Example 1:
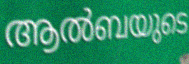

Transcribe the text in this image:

ആൽബയുടെ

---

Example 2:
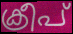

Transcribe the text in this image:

ക്രീപ്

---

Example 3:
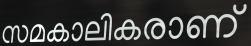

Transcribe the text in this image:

സമകാലികരാണ്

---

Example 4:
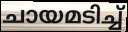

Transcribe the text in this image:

ചായമടിച്ച്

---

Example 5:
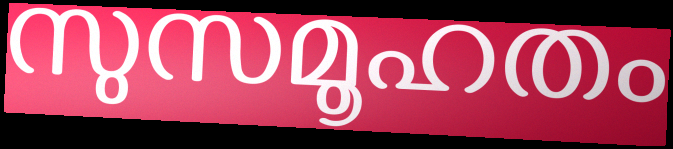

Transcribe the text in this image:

സുസമൂഹതം